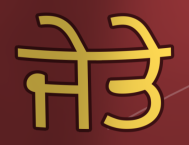
ਜੇਤੇ